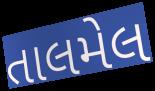
તાલમેલ